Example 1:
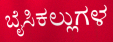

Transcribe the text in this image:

ಬೈಸಿಕಲ್ಲುಗಳ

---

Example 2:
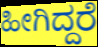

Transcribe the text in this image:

ಹೀಗಿದ್ದರೆ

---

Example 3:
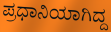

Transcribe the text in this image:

ಪ್ರಧಾನಿಯಾಗಿದ್ದ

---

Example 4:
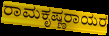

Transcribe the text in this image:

ರಾಮಕೃಷ್ಣರಾಯರ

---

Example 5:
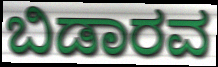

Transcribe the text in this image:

ಬಿಡಾರವ